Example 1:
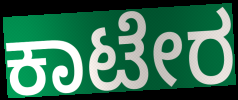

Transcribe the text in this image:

ಕಾಟೇರ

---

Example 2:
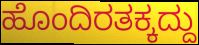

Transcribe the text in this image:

ಹೊಂದಿರತಕ್ಕದ್ದು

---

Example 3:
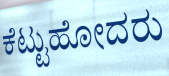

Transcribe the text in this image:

ಕೆಟ್ಟುಹೋದರು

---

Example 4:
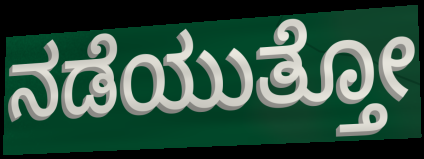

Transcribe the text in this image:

ನಡೆಯುತ್ತೋ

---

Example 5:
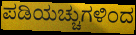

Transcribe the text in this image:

ಪಡಿಯಚ್ಚುಗಳಿಂದ